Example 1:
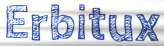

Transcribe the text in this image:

Erbitux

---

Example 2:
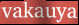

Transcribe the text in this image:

vakauya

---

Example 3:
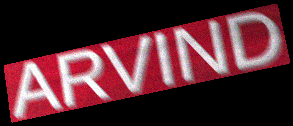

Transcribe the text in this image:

ARVIND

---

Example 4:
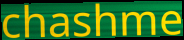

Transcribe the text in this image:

chashme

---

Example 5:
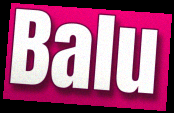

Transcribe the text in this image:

Balu